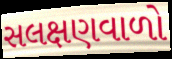
સલક્ષણવાળો